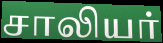
சாலியர்